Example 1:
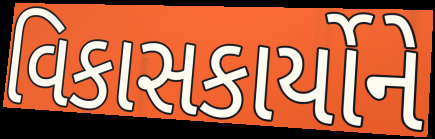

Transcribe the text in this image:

વિકાસકાર્યોને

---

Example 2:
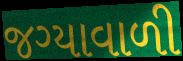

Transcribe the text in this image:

જગ્યાવાળી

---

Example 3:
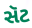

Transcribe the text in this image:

સૅટ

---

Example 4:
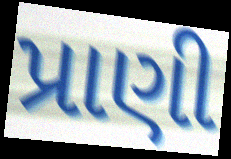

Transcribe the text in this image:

પ્રાણી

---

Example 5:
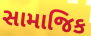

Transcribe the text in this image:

સામાજિક